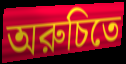
অরুচিতে